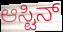
ಆಸ್ಟಿನ್